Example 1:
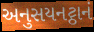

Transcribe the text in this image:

અનુસયનટ્ઠાનં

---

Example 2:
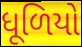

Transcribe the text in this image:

ધૂળિયો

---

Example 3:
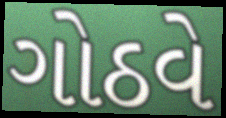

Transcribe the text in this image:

ગોઠવે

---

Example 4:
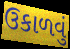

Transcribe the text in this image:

ઉકાળવું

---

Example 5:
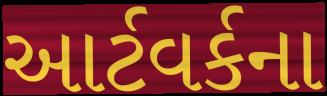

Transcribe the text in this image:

આર્ટવર્કના